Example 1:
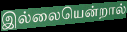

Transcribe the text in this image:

இல்லையென்றால்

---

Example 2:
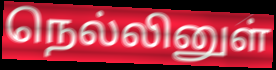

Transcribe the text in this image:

நெல்லினுள்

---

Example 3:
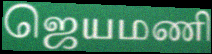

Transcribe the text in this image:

ஜெயமணி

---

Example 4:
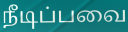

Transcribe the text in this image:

நீடிப்பவை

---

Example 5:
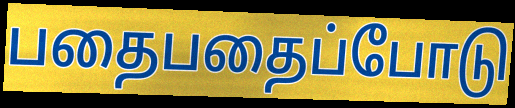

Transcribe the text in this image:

பதைபதைப்போடு